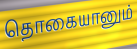
தொகையானும்